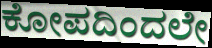
ಕೋಪದಿಂದಲೇ